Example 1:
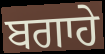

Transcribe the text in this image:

ਬਗਾਹੇ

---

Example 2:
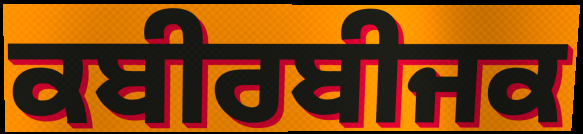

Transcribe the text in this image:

ਕਬੀਰਬੀਜਕ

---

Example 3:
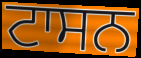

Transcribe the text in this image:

ਟਾਸਨ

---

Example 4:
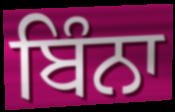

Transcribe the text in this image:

ਬਿੰਨਾ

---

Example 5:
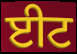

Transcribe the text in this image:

ਈਟ